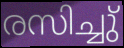
രസിച്ചു്